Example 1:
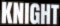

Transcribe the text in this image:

KNIGHT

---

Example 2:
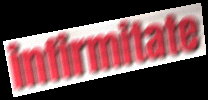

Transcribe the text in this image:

infirmitate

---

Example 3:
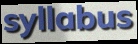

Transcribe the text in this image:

syllabus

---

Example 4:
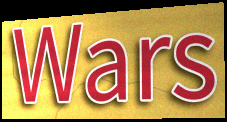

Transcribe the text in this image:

Wars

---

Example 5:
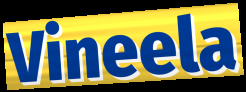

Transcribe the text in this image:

Vineela